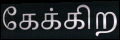
கேக்கிற